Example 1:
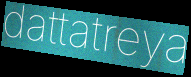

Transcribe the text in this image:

dattatreya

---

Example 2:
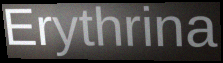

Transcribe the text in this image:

Erythrina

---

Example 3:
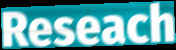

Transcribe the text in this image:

Reseach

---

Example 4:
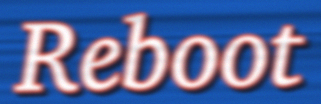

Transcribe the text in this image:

Reboot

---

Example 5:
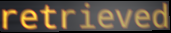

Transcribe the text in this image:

retrieved